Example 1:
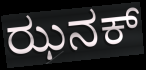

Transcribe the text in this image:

ಝನಕ್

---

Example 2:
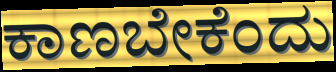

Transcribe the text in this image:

ಕಾಣಬೇಕೆಂದು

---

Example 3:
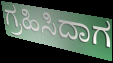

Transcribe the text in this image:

ಗ್ರಹಿಸಿದಾಗ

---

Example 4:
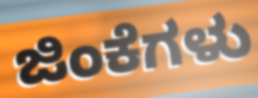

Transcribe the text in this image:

ಜಿಂಕೆಗಳು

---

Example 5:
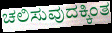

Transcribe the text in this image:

ಚಲಿಸುವುದಕ್ಕಿಂತ